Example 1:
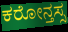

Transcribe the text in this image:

ಕರೋನ್ತಸ್ಸ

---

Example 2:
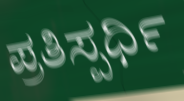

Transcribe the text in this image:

ಪ್ರತಿಸ್ಪರ್ಧಿ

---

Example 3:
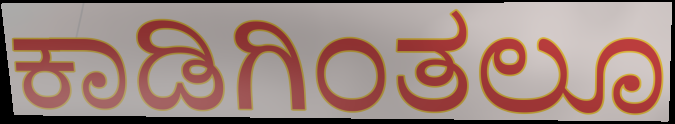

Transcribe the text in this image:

ಕಾಡಿಗಿಂತಲೂ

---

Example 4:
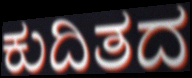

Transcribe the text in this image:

ಕುದಿತದ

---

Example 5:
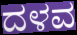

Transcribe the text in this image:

ದಳವ